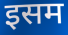
इसम